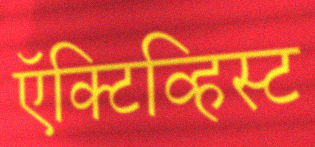
ऍक्टिव्हिस्ट